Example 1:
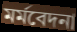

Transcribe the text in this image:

মৰ্মবেদনা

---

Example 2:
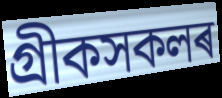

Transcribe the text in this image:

গ্ৰীকসকলৰ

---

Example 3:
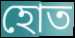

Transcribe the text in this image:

হোত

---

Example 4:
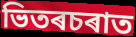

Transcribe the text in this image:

ভিতৰচৰাত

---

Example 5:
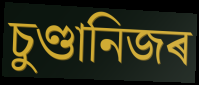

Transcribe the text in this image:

চুণ্ডানিজৰ